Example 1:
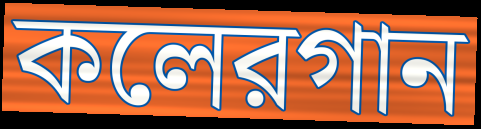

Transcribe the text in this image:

কলেরগান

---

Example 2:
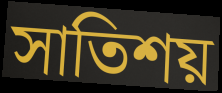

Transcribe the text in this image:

সাতিশয়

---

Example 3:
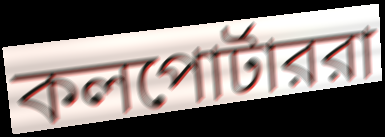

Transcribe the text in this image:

কলপোর্টাররা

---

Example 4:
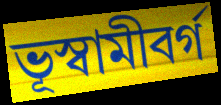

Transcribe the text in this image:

ভূস্বামীবর্গ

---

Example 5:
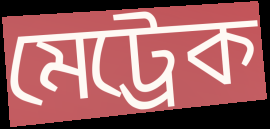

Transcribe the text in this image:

মেট্রেক